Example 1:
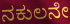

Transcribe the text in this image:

ನಕುಲನೇ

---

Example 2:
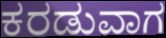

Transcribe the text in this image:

ಕರಡುವಾಗ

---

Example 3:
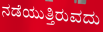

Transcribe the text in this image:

ನಡೆಯುತ್ತಿರುವದು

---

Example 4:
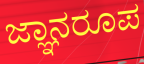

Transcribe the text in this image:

ಜ್ಞಾನರೂಪ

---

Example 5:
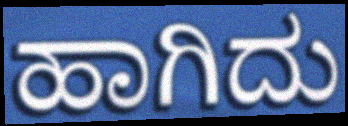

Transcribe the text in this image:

ಹಾಗಿದು